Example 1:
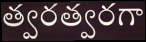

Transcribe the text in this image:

త్వరత్వరగా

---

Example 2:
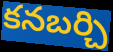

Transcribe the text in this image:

కనబర్చి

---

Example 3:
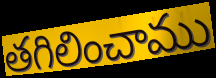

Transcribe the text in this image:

తగిలించాము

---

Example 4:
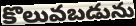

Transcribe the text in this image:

కొలువబడును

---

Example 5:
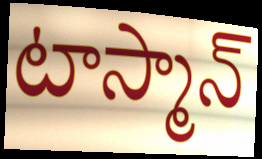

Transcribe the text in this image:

టాస్మాన్